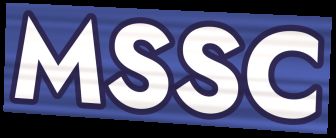
MSSC